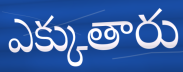
ఎక్కుతారు